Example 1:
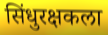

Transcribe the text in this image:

सिंधुरक्षकला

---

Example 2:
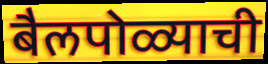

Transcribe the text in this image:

बैलपोळ्याची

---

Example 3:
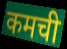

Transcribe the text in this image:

कमची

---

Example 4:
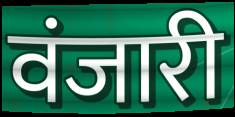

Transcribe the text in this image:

वंजारी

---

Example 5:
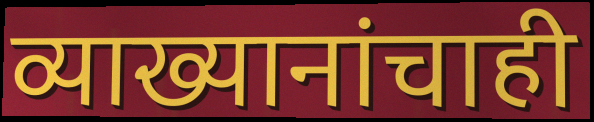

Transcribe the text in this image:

व्याख्यानांचाही